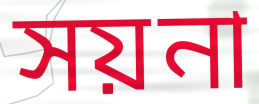
সয়না